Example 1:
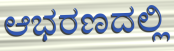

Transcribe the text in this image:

ಆಭರಣದಲ್ಲಿ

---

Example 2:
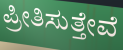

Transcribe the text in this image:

ಪ್ರೀತಿಸುತ್ತೇವೆ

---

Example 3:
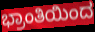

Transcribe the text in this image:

ಭ್ರಾಂತಿಯಿಂದ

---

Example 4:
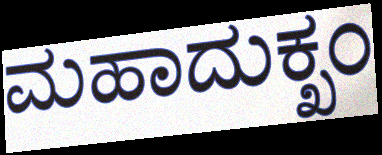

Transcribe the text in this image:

ಮಹಾದುಕ್ಖಂ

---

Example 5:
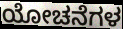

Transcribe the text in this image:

ಯೋಚನೆಗಳ